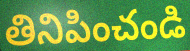
తినిపించండి